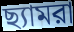
ছ্যামরা